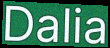
Dalia